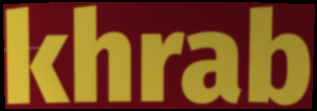
khrab